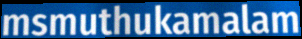
msmuthukamalam